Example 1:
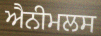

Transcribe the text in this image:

ਐਨੀਮਲਸ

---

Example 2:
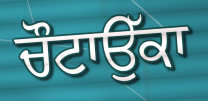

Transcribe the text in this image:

ਚੌਟਾਉੱਕਾ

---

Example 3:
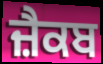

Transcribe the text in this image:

ਜ਼ੈਕਬ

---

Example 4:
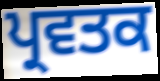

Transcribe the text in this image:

ਪ੍ਰਵਤਕ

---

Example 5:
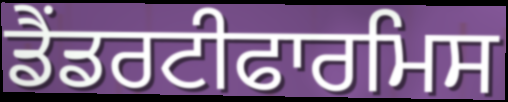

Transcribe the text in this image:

ਡੈਂਡਰਟੀਫਾਰਮਿਸ